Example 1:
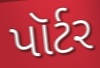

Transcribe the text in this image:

પૉર્ટર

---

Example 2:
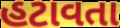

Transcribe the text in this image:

હટાવતા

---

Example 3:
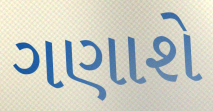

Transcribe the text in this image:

ગણાશે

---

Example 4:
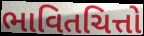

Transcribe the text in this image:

ભાવિતચિત્તો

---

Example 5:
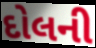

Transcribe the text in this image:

દોલની